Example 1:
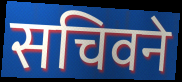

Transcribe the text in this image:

सचिवने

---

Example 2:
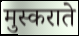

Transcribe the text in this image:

मुस्कराते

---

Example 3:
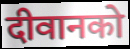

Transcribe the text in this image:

दीवानको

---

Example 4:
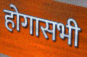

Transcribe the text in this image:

होगासभी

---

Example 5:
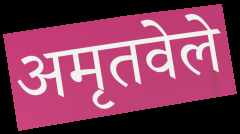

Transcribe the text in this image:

अमृतवेले